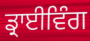
ਡ੍ਰਾਈਵਿੰਗ